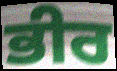
ਭੀਰ